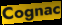
Cognac